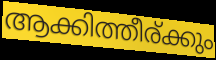
ആക്കിത്തീര്ക്കും